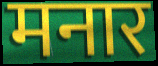
मनार